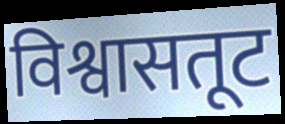
विश्वासतूट